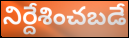
నిర్దేశించబడే